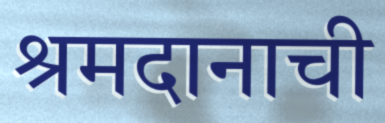
श्रमदानाची